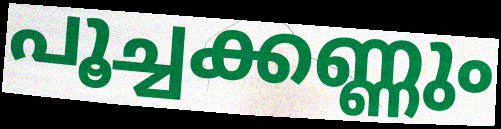
പൂച്ചക്കണ്ണും